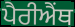
ਪੈਰੀਐਂਥ